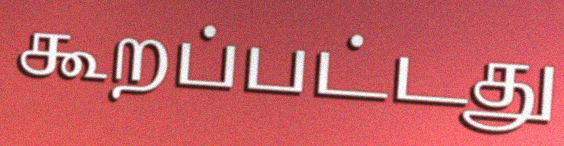
கூறப்பட்டது